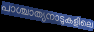
പാശ്ചാത്യനാടുകളിലെ